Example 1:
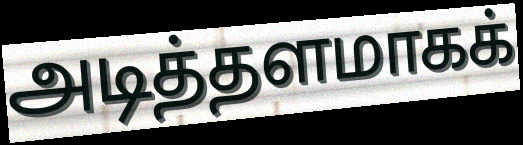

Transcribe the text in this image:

அடித்தளமாகக்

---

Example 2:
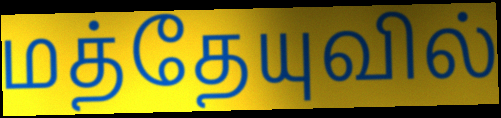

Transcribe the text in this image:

மத்தேயுவில்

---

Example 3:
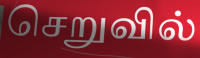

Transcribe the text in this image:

செறுவில்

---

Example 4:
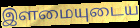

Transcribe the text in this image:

இளமையுடைய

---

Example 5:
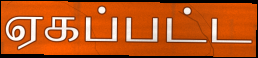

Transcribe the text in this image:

ஏகப்பட்ட